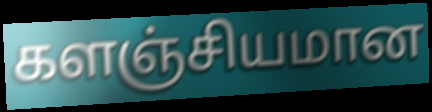
களஞ்சியமான